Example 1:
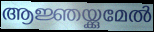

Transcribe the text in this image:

ആജ്ഞയ്ക്കുമേൽ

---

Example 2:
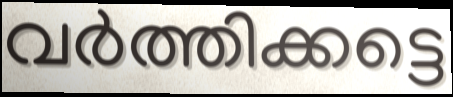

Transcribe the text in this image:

വർത്തിക്കട്ടെ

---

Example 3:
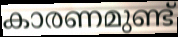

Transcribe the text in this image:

കാരണമുണ്ട്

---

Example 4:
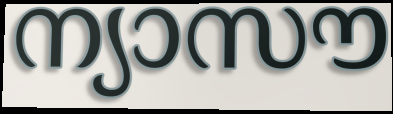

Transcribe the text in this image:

ന്യാസൗ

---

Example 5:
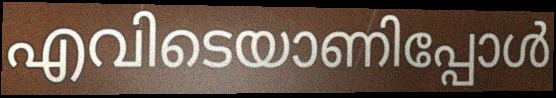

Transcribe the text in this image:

എവിടെയാണിപ്പോൾ